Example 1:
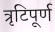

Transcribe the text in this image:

त्रृटिपूर्ण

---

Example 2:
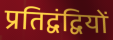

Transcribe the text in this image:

प्रतिद्वंद्वियों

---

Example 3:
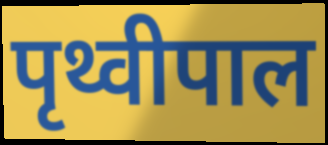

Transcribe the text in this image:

पृथ्वीपाल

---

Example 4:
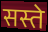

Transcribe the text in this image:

सस्‍ते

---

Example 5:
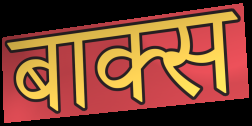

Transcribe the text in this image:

बाक्स